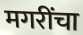
मगरींचा